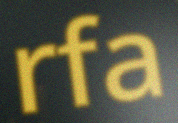
rfa